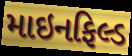
માઇનફિલ્ડ